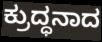
ಕ್ರುದ್ಧನಾದ